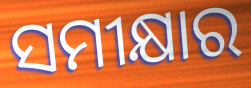
ସମୀକ୍ଷାର